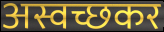
अस्वच्छकर